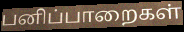
பனிப்பாறைகள்